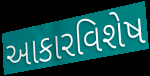
આકારવિશેષ